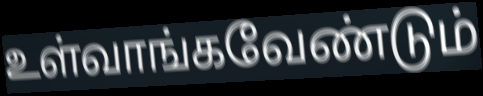
உள்வாங்கவேண்டும்